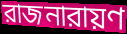
রাজনারায়ণ